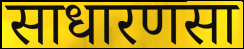
साधारणसा